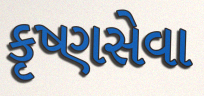
કૃષ્ણસેવા